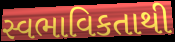
સ્વભાવિકતાથી